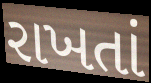
રાખતાં